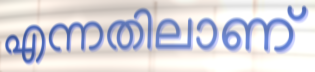
എന്നതിലാണ്